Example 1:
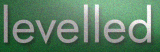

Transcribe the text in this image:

levelled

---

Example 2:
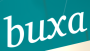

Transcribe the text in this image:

buxa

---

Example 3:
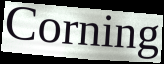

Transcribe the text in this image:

Corning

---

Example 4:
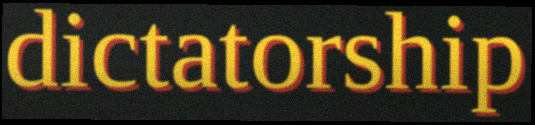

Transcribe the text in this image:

dictatorship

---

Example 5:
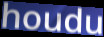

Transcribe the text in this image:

houdu